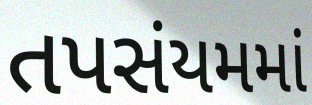
તપસંયમમાં